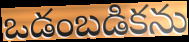
ఒడంబడికను